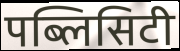
पब्लिसिटी